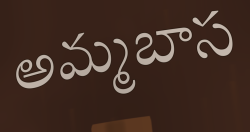
అమ్మబాస